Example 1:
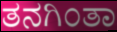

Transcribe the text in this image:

ತನಗಿಂತಾ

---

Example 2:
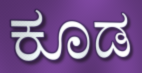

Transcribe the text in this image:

ಕೂಡ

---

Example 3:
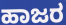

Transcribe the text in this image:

ಹಾಜರ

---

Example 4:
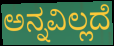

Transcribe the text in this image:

ಅನ್ನವಿಲ್ಲದೆ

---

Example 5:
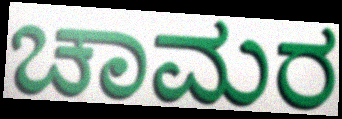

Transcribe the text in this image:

ಚಾಮರ